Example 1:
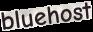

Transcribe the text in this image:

bluehost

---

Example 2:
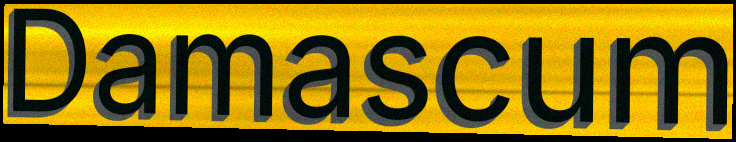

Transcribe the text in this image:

Damascum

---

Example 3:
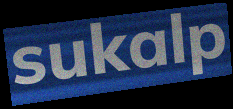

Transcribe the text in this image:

sukalp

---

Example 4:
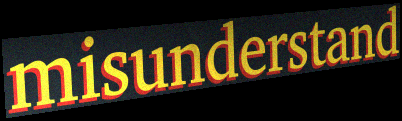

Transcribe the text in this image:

misunderstand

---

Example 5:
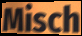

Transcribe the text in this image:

Misch